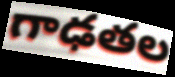
గాఢతల